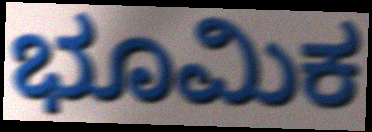
ಭೂಮಿಕ